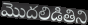
మొదలిడితిని